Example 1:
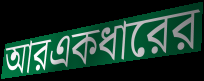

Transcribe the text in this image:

আরএকধারের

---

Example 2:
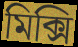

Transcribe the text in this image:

মিক্সি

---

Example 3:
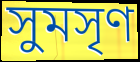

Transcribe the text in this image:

সুমসৃণ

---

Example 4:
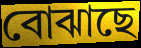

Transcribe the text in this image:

বোঝাছে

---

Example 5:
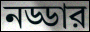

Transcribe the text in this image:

নড্ডার